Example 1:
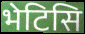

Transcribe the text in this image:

भेटिसि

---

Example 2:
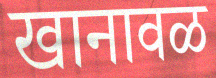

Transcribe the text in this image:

खानावळ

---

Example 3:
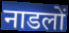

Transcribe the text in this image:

नाडलों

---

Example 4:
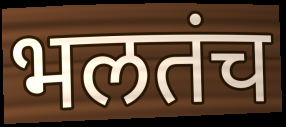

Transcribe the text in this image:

भलतंच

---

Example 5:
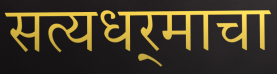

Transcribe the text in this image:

सत्यधर्माचा